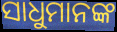
ସାଧୁମାନଙ୍କ